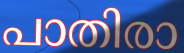
പാതിരാ